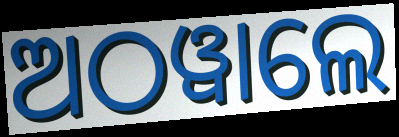
ଅଠୱାଲେ